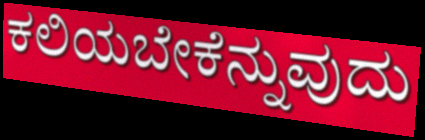
ಕಲಿಯಬೇಕೆನ್ನುವುದು